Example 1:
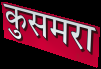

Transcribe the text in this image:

कुसमरा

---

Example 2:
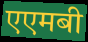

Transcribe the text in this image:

एएमबी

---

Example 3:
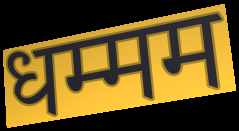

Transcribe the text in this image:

धम्मम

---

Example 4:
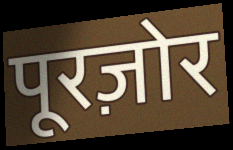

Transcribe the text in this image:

पूरज़ोर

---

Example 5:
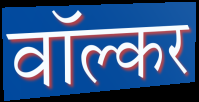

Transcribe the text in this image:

वॉल्कर